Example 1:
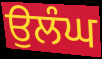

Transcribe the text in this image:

ਉਲੰਘ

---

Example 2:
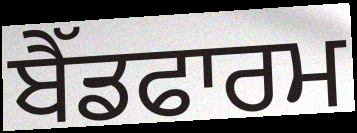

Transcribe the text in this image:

ਬੈੱਡਫਾਰਮ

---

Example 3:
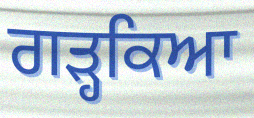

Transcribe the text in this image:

ਗੜ੍ਹਕਿਆ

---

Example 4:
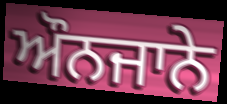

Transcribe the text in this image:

ਔਨਜਾਨੇ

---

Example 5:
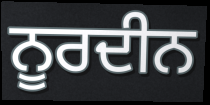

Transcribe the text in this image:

ਨੂਰਦੀਨ